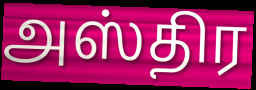
அஸ்திர